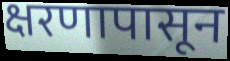
क्षरणापासून